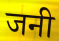
जनी